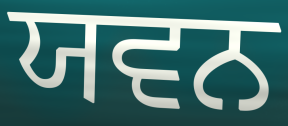
ਯਵਨ